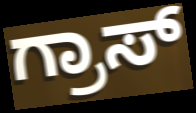
ಗ್ರಾಸ್